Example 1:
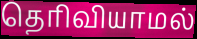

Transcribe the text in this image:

தெரிவியாமல்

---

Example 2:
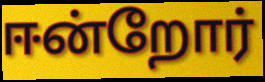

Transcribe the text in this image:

ஈன்றோர்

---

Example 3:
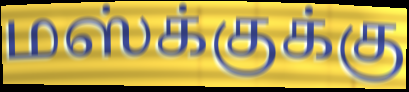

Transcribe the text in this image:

மஸ்க்குக்கு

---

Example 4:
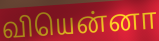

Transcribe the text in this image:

வியென்னா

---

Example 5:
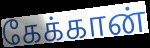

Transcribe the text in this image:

கேக்கான்